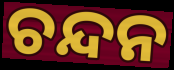
ଚନ୍ଦନ